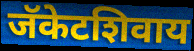
जॅकेटशिवाय